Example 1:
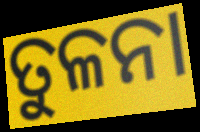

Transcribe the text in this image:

ତୁଳନା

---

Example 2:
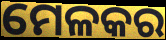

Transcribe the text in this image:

ମେଳକର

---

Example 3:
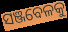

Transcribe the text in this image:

ସଞ୍ଜବେଳକୁ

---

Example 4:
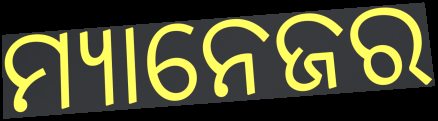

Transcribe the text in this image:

ମ୍ୟାନେଜର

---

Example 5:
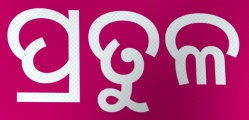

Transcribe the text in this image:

ପ୍ରତୁଳ